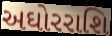
અઘોરરાશિ